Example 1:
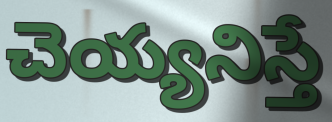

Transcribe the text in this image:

చెయ్యనిస్తే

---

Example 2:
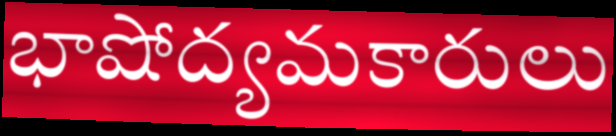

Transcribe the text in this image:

భాషోద్యమకారులు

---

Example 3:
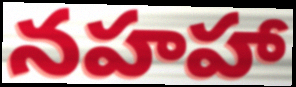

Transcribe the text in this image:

నహహా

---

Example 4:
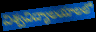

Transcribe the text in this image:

విశ్వవిద్యాలయాలలో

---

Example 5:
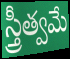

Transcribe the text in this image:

స్త్రీత్వమే